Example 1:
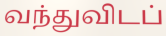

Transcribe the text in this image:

வந்துவிடப்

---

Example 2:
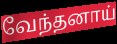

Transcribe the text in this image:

வேந்தனாய்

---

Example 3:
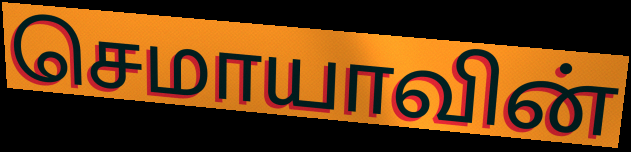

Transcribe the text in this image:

செமாயாவின்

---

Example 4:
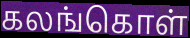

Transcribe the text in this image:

கலங்கொள்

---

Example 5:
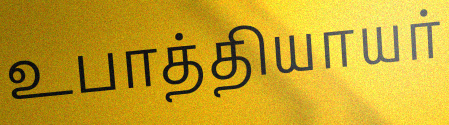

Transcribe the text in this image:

உபாத்தியாயர்